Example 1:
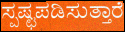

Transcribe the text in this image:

ಸ್ಪಷ್ಟಪಡಿಸುತ್ತಾರೆ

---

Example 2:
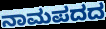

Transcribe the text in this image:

ನಾಮಪದದ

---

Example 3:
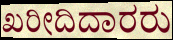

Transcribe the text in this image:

ಖರೀದಿದಾರರು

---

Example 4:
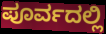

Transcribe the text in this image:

ಪೂರ್ವದಲ್ಲಿ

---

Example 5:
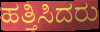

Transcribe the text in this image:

ಹತ್ತಿಸಿದರು